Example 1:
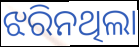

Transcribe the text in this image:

ଝରିନଥିଲା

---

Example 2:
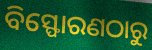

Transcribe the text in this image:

ବିସ୍ଫୋରଣଠାରୁ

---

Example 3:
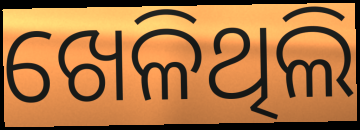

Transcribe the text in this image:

ଖେଳିଥିଲି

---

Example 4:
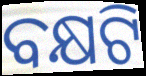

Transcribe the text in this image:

ବକ୍ଷଟି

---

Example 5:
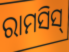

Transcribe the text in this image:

ରାମସିସ୍